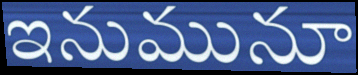
ఇనుమునూ